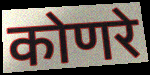
कोणरे